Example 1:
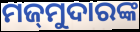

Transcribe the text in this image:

ମଜ୍‍ମୁଦାରଙ୍କ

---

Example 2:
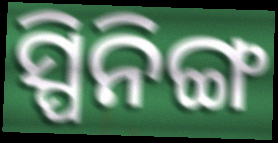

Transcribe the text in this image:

ସ୍ପିନିଙ୍ଗ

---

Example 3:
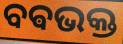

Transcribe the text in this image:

ବଵଭକ୍ତ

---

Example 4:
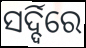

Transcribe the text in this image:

ସର୍ଦ୍ଦିରେ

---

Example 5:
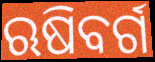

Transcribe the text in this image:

ଋଷିବର୍ଗ